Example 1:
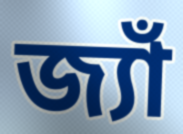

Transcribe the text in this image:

জ্যাঁ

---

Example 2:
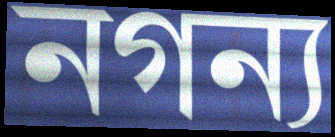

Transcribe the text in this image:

নগন্য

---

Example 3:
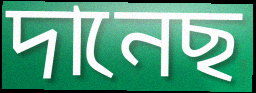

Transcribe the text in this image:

দানেছ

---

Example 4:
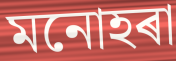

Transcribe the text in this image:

মনোহৰা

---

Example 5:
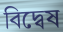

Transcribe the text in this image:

বিদ্বেষ